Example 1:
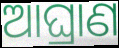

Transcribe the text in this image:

ଆଘ୍ରାଣ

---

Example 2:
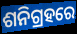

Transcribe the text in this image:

ଶନିଗ୍ରହରେ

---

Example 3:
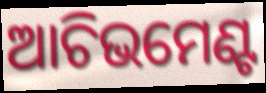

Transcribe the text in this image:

ଆଚିଭମେଣ୍ଟ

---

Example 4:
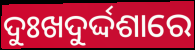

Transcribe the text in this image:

ଦୁଃଖଦୁର୍ଦ୍ଦଶାରେ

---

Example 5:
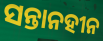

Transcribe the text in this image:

ସନ୍ତାନହୀନ